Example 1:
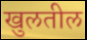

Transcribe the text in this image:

खुलतील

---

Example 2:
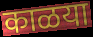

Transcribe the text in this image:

काळया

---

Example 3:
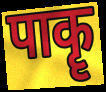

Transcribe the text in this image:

पाकॄ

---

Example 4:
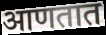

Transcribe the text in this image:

आणतात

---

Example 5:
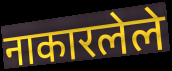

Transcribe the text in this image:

नाकारलेले